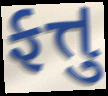
ફત્તુ